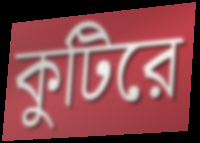
কুটিরে